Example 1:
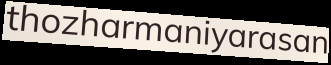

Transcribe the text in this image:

thozharmaniyarasan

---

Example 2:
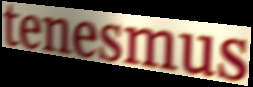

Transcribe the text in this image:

tenesmus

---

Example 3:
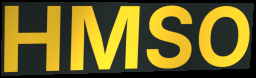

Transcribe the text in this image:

HMSO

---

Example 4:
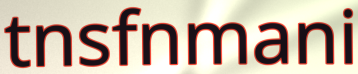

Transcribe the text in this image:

tnsfnmani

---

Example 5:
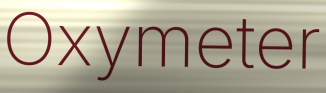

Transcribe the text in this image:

Oxymeter